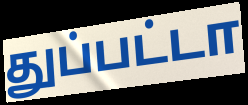
துப்பட்டா